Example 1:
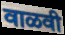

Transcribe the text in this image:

वाळवी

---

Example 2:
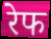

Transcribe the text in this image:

रेफ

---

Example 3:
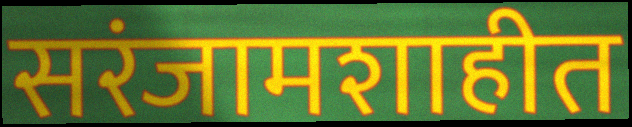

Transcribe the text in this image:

सरंजामशाहीत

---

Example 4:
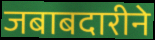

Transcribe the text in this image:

जबाबदारीने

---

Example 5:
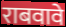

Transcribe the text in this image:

राबवावे